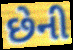
છેની